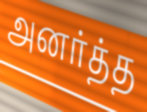
அனர்த்த